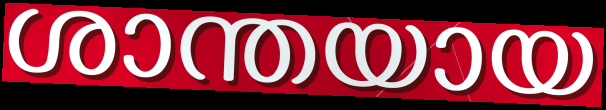
ശാന്തയായ